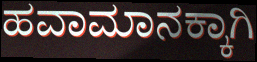
ಹವಾಮಾನಕ್ಕಾಗಿ